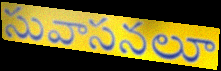
సువాసనలూ